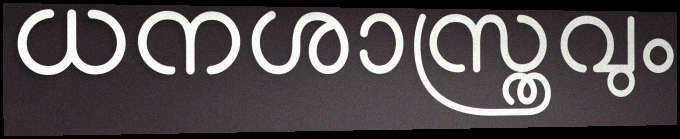
ധനശാസ്ത്രവും